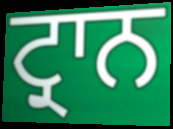
ਟ੍ਰਾਨ